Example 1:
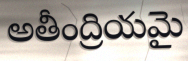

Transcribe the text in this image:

అతీంద్రియమై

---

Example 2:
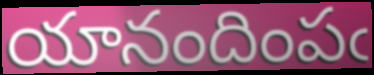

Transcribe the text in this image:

యానందింపఁ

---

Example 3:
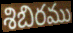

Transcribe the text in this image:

శిబిరము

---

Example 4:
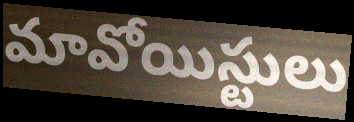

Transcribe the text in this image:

మావోయిస్టులు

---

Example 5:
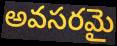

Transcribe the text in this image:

అవసరమై